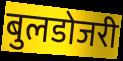
बुलडोजरी